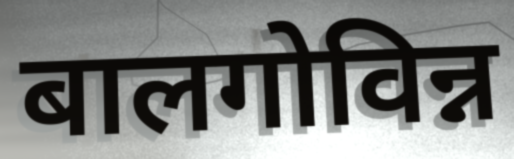
बालगोविन्न